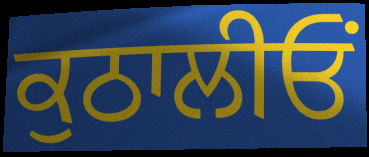
ਕੁਠਾਲੀਓਂ